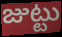
జుట్టు